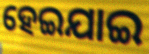
ହେଇଯାଇ